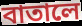
বাতালে